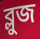
ব্লুজ